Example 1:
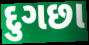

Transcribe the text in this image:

દુગછા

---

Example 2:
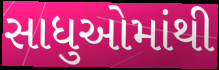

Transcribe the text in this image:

સાધુઓમાંથી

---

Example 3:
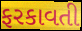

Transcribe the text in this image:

ફરકાવતી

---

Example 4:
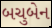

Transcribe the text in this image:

બચુબેન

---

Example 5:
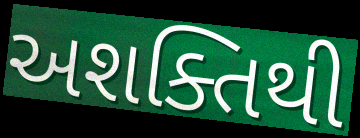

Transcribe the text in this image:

અશક્તિથી